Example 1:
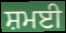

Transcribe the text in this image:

ਸ਼ਮਈ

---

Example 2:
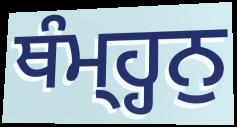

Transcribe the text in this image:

ਥੰਮ੍ਹ੍ਹਨੁ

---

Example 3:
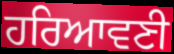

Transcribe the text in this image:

ਹਰਿਆਵਣੀ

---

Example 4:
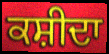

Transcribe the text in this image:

ਕਸ਼ੀਦਾ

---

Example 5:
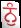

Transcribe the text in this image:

ਨੁੰ